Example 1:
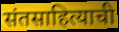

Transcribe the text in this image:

संतसाहित्याची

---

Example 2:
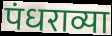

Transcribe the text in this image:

पंधराव्या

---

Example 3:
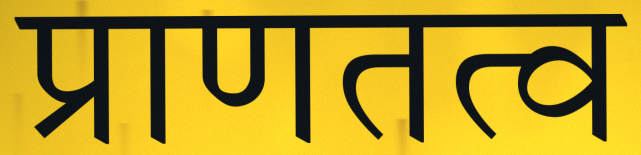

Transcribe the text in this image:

प्राणतत्व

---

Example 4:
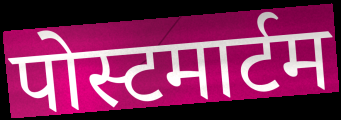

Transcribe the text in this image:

पोस्टमार्टम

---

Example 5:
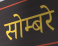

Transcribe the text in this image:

सोम्बरे